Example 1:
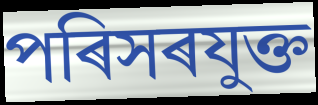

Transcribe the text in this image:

পৰিসৰযুক্ত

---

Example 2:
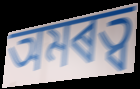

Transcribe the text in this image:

অমৰত্ব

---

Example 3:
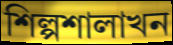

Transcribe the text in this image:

শিল্পশালাখন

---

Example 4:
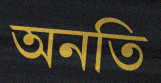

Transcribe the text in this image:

অনতি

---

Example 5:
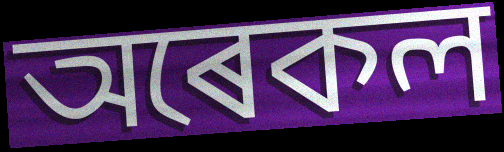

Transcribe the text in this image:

অৰেকল